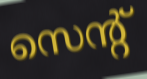
സെന്റ്